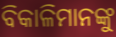
ବିକାଳିମାନଙ୍କୁ